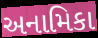
અનામિકા